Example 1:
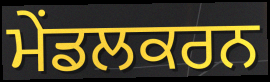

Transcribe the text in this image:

ਮੇਂਡਲਕਰਨ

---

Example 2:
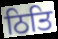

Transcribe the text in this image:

ਠਿਤਿ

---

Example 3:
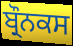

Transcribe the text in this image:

ਬ੍ਰੌਨਕਸ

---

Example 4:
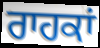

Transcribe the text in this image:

ਰਾਹਕਾਂ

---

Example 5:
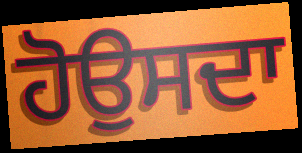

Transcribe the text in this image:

ਹੋਉਸਦਾ